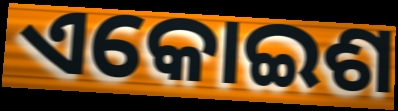
ଏକୋଇଶ